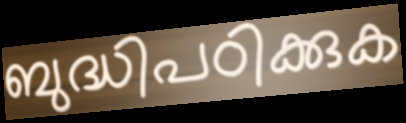
ബുദ്ധിപഠിക്കുക